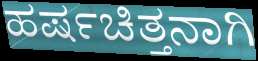
ಹರ್ಷಚಿತ್ತನಾಗಿ